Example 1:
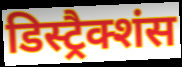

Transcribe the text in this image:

डिस्ट्रैक्शंस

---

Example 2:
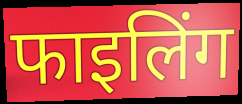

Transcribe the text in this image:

फाइलिंग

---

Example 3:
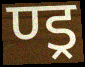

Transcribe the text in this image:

ण्ड्र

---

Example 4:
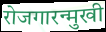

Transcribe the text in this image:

रोजगारन्मुखी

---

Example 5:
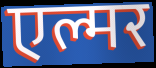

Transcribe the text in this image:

एल्मर